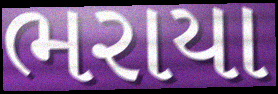
ભરાયા